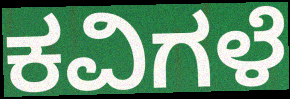
ಕವಿಗಳೆ